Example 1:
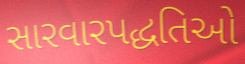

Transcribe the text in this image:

સારવારપદ્ધતિઓ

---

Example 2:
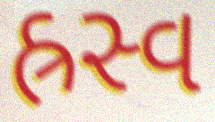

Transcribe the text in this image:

હ્રસ્વ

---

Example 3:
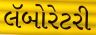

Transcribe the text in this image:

લૅબોરેટરી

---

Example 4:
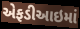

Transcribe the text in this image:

એફડીઆઇમાં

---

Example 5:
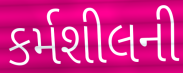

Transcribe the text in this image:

કર્મશીલની